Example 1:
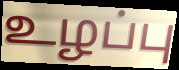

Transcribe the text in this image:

உழப்பு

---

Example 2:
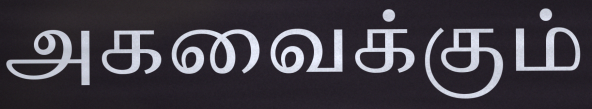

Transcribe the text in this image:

அகவைக்கும்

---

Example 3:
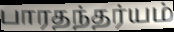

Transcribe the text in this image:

பாரதந்தர்யம்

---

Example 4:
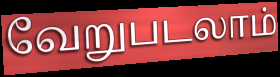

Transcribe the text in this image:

வேறுபடலாம்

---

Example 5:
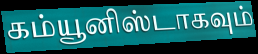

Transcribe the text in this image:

கம்யூனிஸ்டாகவும்